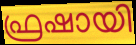
ഫ്രഷായി